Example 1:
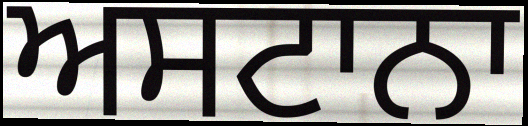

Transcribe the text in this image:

ਅਸਟਾਨਾ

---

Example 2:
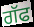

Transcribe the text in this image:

ਗੱਫ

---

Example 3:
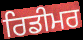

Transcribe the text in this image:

ਰਿਡੀਮਰ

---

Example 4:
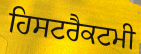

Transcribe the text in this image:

ਹਿਸਟਰੈਕਟਮੀ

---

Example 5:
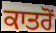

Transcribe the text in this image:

ਕਾਤਰੋੰ